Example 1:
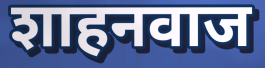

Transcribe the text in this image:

शाहनवाज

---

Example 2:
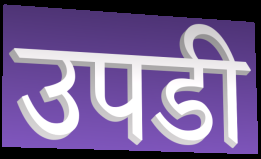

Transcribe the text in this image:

उपडी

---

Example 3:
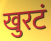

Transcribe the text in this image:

खुरटं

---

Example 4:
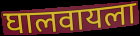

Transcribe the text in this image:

घालवायला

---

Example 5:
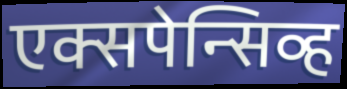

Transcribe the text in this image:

एक्सपेन्सिव्ह